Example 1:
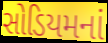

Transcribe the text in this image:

સોડિયમનાં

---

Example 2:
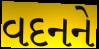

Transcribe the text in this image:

વદનને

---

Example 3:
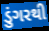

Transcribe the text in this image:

ડુંગરથી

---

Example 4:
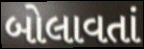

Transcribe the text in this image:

બોલાવતાં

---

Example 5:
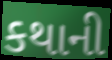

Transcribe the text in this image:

કથાની